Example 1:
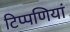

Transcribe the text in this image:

टिप्पणियां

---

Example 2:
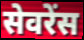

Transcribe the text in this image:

सेवरेंस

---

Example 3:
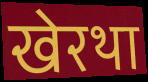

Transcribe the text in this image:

खेरथा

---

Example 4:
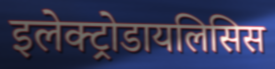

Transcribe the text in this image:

इलेक्ट्रोडायलिसिस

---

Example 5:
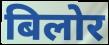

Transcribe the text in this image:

बिलोर